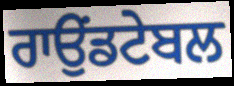
ਰਾਉਂਡਟੇਬਲ